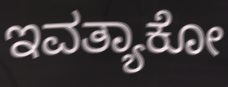
ಇವತ್ಯಾಕೋ